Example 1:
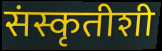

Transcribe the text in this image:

संस्कृतीशी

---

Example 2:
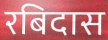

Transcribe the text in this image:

रबिदास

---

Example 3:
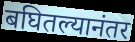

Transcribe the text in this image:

बघितल्यानंतर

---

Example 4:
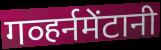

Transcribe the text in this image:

गव्हर्नमेंटानी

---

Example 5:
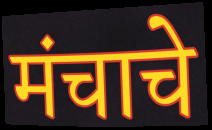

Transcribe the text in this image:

मंचाचे